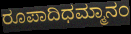
ರೂಪಾದಿಧಮ್ಮಾನಂ